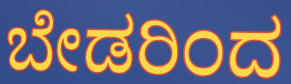
ಬೇಡರಿಂದ